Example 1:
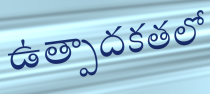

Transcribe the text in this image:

ఉత్పాదకతలో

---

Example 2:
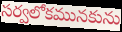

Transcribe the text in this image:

సర్వలోకమునకును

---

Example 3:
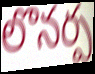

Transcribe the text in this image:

లొనర్ప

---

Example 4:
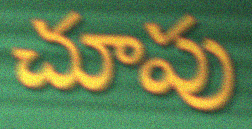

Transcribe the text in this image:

చూపు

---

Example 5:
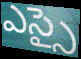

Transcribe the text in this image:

ఎస్సై